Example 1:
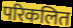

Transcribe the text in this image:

परिकलित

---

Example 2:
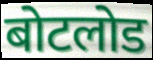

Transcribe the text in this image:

बोटलोड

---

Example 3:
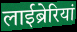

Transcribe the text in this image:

लाईब्रेरियां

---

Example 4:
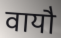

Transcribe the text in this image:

वायौ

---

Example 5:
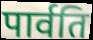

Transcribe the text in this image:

पार्वति